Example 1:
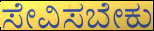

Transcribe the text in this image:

ಸೇವಿಸಬೇಕು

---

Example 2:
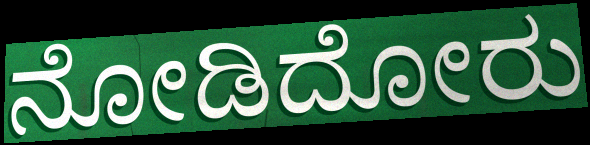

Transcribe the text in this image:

ನೋಡಿದೋರು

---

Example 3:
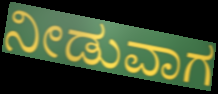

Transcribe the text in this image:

ನೀಡುವಾಗ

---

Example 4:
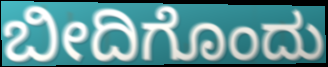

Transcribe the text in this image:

ಬೀದಿಗೊಂದು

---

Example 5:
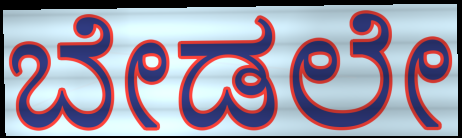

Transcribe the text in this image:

ಬೇಡಲೇ